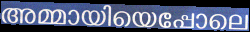
അമ്മായിയെപ്പോലെ